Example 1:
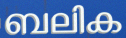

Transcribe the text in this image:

ബലിക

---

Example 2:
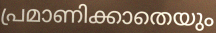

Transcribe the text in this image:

പ്രമാണിക്കാതെയും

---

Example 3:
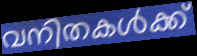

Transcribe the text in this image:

വനിതകൾക്ക്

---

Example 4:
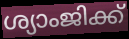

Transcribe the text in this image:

ശ്യാംജിക്ക്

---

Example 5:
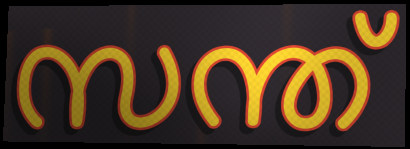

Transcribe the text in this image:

സന്ത്